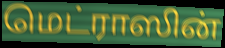
மெட்ராஸின்